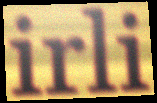
irli